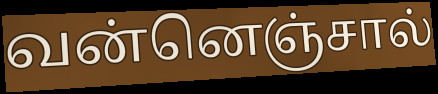
வன்னெஞ்சால்